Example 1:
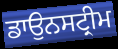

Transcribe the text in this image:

ਡਾਉਨਸਟ੍ਰੀਮ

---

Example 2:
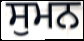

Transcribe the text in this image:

ਸੁਮਨ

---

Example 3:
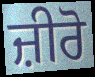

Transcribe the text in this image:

ਜ਼ੀਰੋ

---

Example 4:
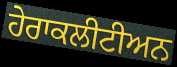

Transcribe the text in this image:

ਹੇਰਾਕਲੀਟੀਅਨ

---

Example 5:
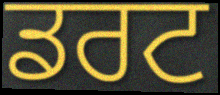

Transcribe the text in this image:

ਡਰਟ